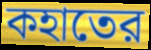
কহাতের